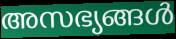
അസഭ്യങ്ങൾ